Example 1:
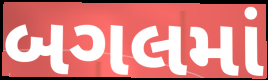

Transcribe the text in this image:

બગલમાં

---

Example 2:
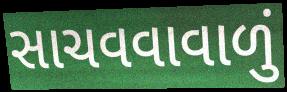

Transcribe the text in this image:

સાચવવાવાળું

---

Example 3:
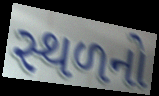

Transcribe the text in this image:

સ્થળનો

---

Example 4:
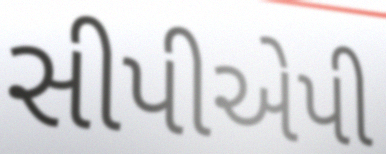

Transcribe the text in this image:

સીપીએપી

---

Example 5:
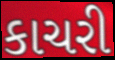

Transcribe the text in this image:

કાચરી